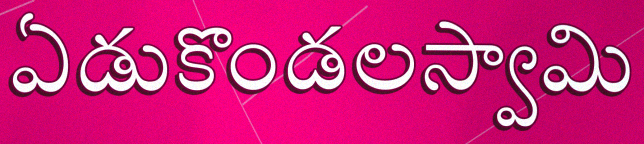
ఏడుకొండలస్వామి